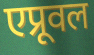
एप्रूवल